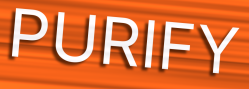
PURIFY